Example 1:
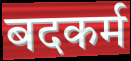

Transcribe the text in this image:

बदकर्म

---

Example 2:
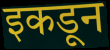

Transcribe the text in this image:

इकडून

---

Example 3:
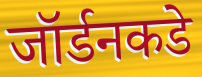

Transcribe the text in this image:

जॉर्डनकडे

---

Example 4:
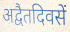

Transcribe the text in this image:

अद्वैतदिवसें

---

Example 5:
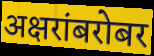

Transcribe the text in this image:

अक्षरांबरोबर